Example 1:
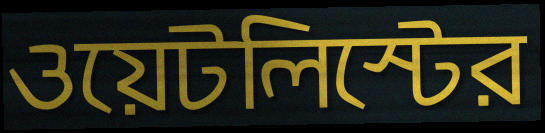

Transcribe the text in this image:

ওয়েটলিস্টের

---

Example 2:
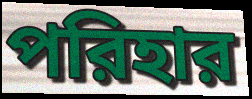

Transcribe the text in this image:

পরিহার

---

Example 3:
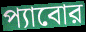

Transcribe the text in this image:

প্যাবোর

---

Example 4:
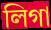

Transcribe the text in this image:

লিগা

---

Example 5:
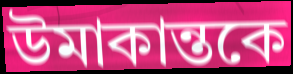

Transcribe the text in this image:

উমাকান্তকে